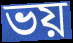
ভয়